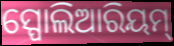
ସ୍ପୋଲିଆରିୟମ୍